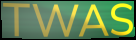
TWAS